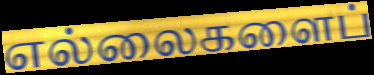
எல்லைகளைப்